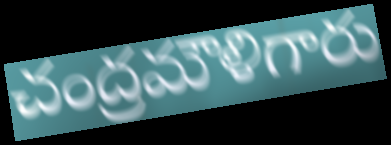
చంద్రమౌళిగారు